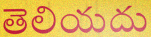
తెలియదు